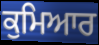
ਕੁਮਿਆਰ